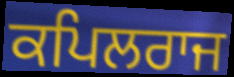
ਕਪਿਲਰਾਜ